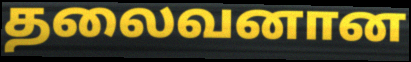
தலைவனான